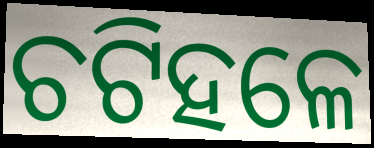
ଚଟିହଳେ